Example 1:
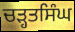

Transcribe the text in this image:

ਚੜ੍ਹਤਸਿੰਘ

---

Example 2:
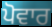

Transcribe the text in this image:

ਪੋਵਾਰ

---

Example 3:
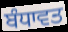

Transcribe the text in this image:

ਬੰਧਾਵਤ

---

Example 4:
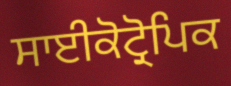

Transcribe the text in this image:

ਸਾਈਕੋਟ੍ਰੋਪਿਕ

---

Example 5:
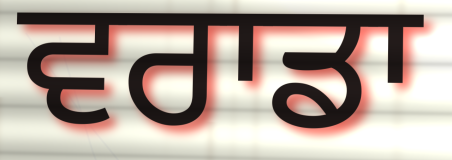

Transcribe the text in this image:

ਵਰਾਡਾ